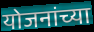
योजनांच्या